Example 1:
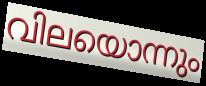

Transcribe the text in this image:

വിലയൊന്നും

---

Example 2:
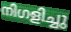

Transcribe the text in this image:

നിഗളിച്ചു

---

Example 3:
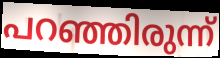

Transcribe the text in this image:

പറഞ്ഞിരുന്ന്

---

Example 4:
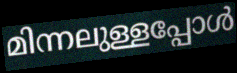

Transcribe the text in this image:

മിന്നലുള്ളപ്പോൾ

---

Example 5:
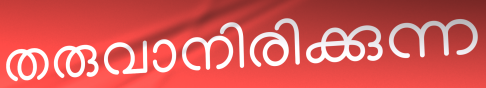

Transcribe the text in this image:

തരുവാനിരിക്കുന്ന